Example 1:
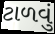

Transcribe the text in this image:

ટાળવું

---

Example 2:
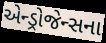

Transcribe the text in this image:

એન્ડ્રોજેન્સના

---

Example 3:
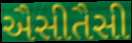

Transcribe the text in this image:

ઐસીતૈસી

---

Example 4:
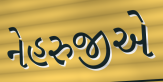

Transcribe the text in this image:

નેહરુજીએ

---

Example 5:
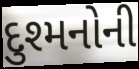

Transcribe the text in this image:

દુશ્મનોની